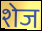
शेज